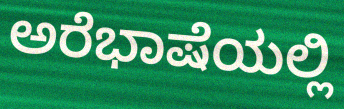
ಅರೆಭಾಷೆಯಲ್ಲಿ